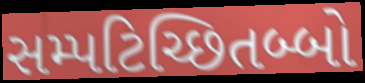
સમ્પટિચ્છિતબ્બો